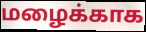
மழைக்காக